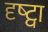
दृष्ट्वा